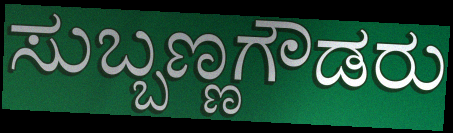
ಸುಬ್ಬಣ್ಣಗೌಡರು